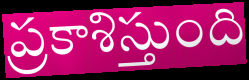
ప్రకాశిస్తుంది